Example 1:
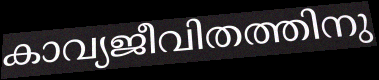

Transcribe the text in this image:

കാവ്യജീവിതത്തിനു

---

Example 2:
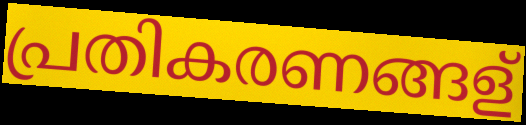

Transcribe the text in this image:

പ്രതികരണങ്ങള്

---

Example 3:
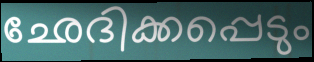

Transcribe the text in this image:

ഛേദിക്കപ്പെടും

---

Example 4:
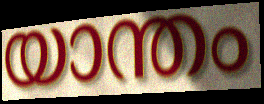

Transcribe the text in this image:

യാന്തം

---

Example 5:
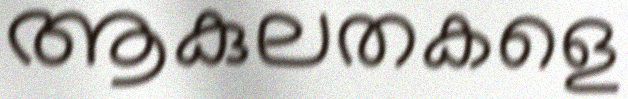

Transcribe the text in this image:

ആകുലതകളെ